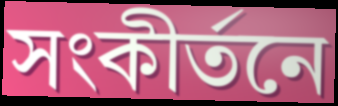
সংকীর্তনে